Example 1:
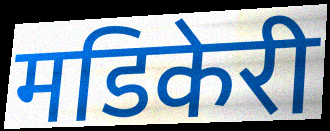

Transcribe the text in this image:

मडिकेरी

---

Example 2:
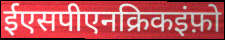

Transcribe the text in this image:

ईएसपीएनक्रिकइंफ़ो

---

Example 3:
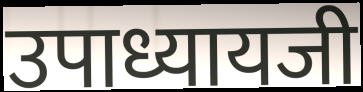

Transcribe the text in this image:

उपाध्यायजी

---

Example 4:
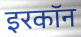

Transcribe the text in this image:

इरकॉन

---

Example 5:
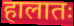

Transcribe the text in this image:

हालातः